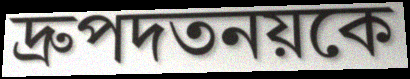
দ্রুপদতনয়কে